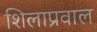
शिलाप्रवाल